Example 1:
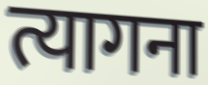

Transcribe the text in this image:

त्यागना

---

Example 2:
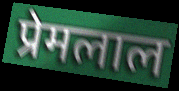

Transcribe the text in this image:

प्रेमलाल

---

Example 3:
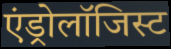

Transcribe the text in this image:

एंड्रोलॉजिस्ट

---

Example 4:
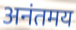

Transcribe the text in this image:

अनंतमय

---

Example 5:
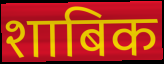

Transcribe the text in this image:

शाबिक